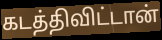
கடத்திவிட்டான்